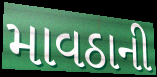
માવઠાની